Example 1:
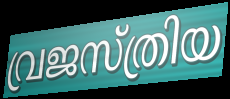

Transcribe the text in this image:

വ്രജസ്ത്രിയ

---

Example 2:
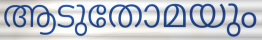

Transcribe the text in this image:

ആടുതോമയും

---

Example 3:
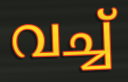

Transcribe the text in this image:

വച്ച്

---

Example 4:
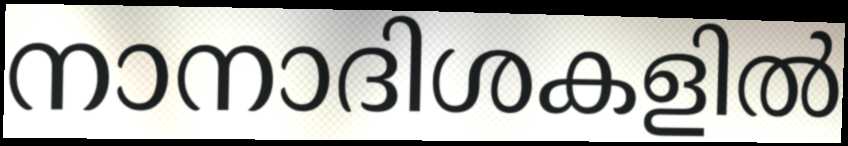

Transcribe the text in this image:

നാനാദിശകളിൽ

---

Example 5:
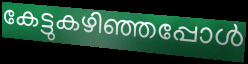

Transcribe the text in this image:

കേട്ടുകഴിഞ്ഞപ്പോൾ